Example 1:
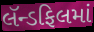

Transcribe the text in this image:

લૅન્ડફિલમાં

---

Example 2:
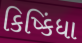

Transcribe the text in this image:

કિષ્કિંધા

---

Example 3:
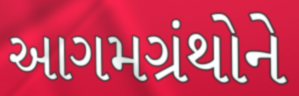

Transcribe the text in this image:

આગમગ્રંથોને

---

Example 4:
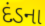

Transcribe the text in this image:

દંડના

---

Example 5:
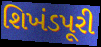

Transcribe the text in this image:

શિખંડપૂરી